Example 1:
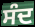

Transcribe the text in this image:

ਸੰਦ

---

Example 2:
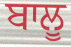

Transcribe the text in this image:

ਬਾਲੂ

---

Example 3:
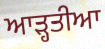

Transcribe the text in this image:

ਆੜ੍ਹਤੀਆ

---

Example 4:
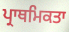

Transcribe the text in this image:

ਪ੍ਰਾਥਮਿਕਤਾ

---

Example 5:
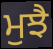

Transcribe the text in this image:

ਮੁਝੈ